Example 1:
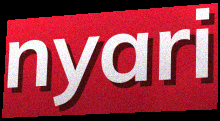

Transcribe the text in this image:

nyari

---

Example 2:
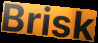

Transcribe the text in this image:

Brisk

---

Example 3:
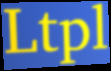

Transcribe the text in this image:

Ltpl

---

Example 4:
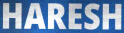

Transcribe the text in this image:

HARESH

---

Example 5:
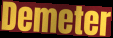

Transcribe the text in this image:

Demeter